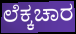
ಲೆಕ್ಕಚಾರ